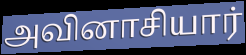
அவினாசியார்